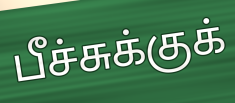
பீச்சுக்குக்